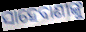
ସାହେବାଣୀଙ୍କୁ